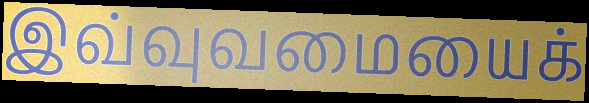
இவ்வுவமையைக்